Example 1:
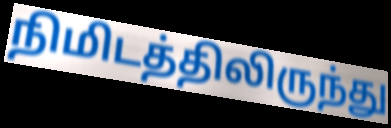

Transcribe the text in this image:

நிமிடத்திலிருந்து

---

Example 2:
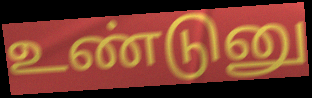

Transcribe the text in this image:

உண்டுனு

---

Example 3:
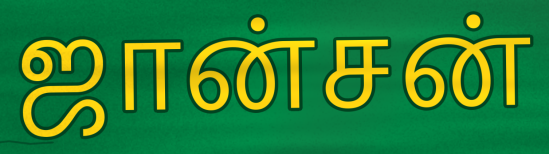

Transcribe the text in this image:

ஜான்சன்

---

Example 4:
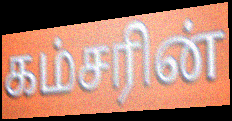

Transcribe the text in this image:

கம்சரின்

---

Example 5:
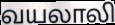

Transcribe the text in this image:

வயலாலி